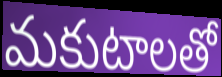
మకుటాలతో